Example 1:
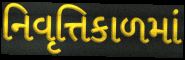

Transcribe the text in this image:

નિવૃત્તિકાળમાં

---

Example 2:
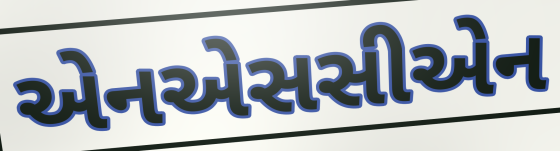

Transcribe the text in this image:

એનએસસીએન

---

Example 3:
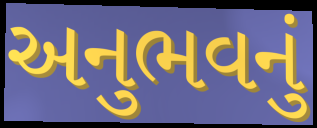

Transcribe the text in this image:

અનુભવનું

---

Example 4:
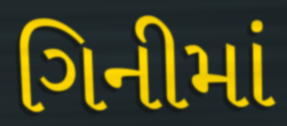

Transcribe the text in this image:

ગિનીમાં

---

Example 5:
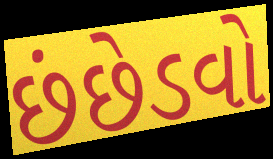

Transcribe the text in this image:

છંછેડવો